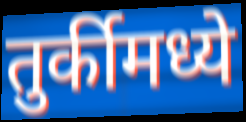
तुर्कीमध्ये